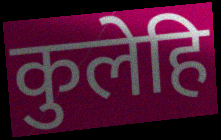
कुलेहि